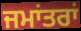
ਜਮਾਂਤਰਾਂ